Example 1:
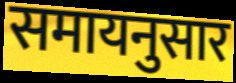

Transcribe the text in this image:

समायनुसार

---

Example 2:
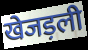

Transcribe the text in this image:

खेजड़ली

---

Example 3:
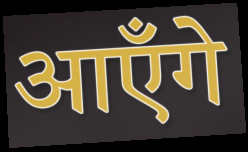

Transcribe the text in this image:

आएँगे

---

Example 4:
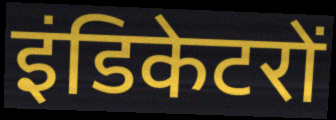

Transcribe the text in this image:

इंडिकेटरों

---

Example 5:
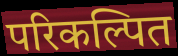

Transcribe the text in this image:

परिकल्पित